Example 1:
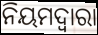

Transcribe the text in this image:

ନିୟମଦ୍ଵାରା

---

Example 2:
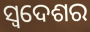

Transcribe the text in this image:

ସ୍ଵଦେଶର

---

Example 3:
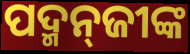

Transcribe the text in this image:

ପଦ୍ମନ୍‌ଜୀଙ୍କ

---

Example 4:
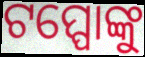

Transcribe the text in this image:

ଟପ୍ପୋଙ୍କୁ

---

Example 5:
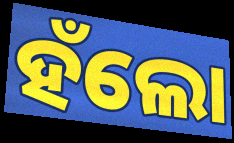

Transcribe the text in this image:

ହଁଲୋ